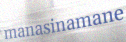
manasinamane